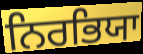
ਨਿਰਭਿਯਾ